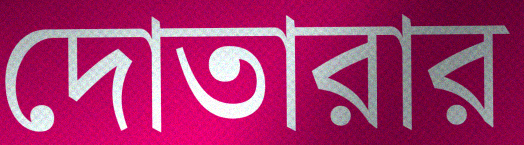
দোতারার